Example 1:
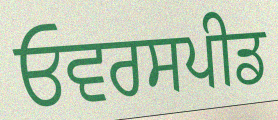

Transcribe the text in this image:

ਓਵਰਸਪੀਡ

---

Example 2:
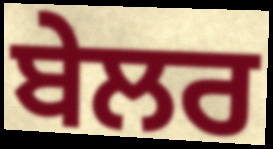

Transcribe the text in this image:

ਬੇਲਰ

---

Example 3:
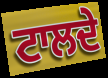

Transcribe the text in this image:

ਟਾਲਦੇ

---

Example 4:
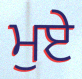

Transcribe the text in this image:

ਮੁਏ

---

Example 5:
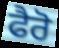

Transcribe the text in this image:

ਫੈਰੋ